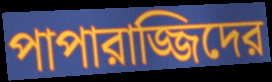
পাপারাজ্জিদের